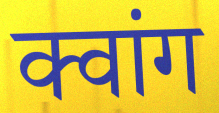
क्वांग